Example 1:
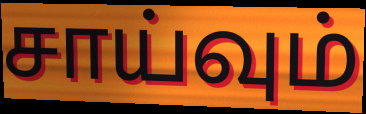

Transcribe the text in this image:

சாய்வும்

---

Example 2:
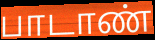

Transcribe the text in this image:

பாடாண்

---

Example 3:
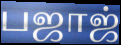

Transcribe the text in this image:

பஜாஜ்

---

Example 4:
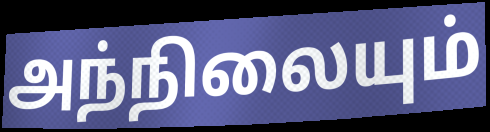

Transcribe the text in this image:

அந்நிலையும்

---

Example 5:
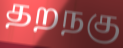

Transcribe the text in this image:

தறநகு